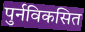
पुर्नविकसित